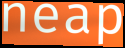
neap